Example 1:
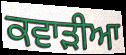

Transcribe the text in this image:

ਕਵਾੜੀਆ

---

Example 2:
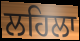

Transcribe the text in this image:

ਲਹਿਲਾ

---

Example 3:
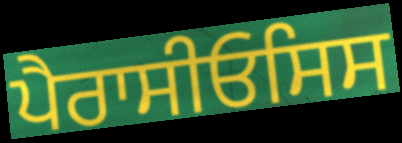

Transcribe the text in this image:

ਪੈਰਾਸੀਓਸਿਸ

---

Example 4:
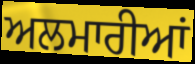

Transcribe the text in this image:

ਅਲਮਾਰੀਆਂ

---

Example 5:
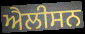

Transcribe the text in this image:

ਐਲੀਸਨ